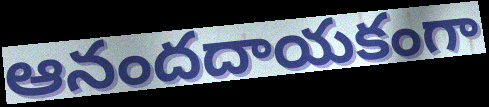
ఆనందదాయకంగా